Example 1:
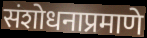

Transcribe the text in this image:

संशोधनाप्रमाणे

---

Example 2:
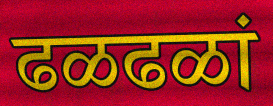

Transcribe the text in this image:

ढळढळां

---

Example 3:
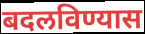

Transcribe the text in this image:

बदलविण्यास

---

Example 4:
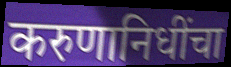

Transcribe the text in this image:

करुणानिधींचा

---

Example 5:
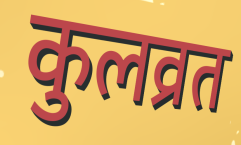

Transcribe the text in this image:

कुलव्रत